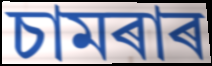
চামৰাৰ